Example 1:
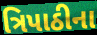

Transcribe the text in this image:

ત્રિપાઠીના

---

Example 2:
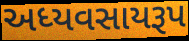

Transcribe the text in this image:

અધ્યવસાયરૂપ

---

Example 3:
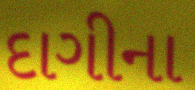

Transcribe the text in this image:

દાગીના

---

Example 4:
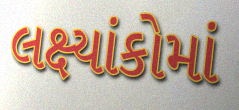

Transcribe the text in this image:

લક્ષ્યાંકોમાં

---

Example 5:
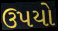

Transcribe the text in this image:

ઉપયો